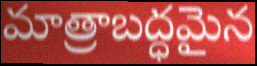
మాత్రాబద్ధమైన